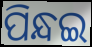
ପିନ୍ଧଇ